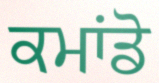
ਕਮਾਂਡੋ